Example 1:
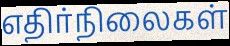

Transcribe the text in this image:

எதிர்நிலைகள்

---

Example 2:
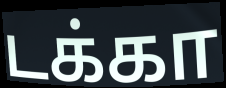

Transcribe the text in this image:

டக்கா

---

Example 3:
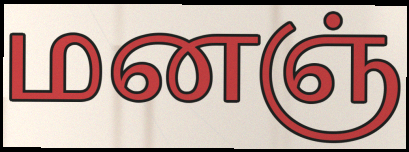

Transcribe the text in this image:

மனஞ்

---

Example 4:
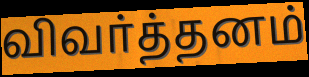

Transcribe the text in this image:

விவர்த்தனம்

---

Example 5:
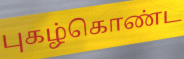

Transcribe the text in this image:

புகழ்கொண்ட